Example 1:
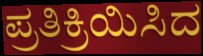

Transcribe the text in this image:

ಪ್ರತಿಕ್ರಿಯಿಸಿದ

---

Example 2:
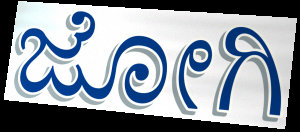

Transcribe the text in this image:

ಜೋಗಿ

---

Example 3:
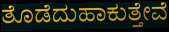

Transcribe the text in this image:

ತೊಡೆದುಹಾಕುತ್ತೇವೆ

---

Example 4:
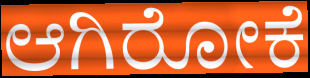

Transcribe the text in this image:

ಆಗಿರೋಕೆ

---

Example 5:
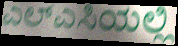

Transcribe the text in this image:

ಎಲ್ಎಸಿಯಲ್ಲಿ